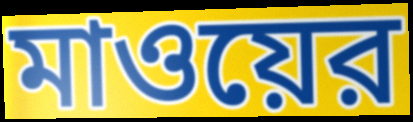
মাওয়ের